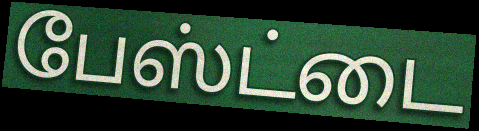
பேஸ்ட்டை